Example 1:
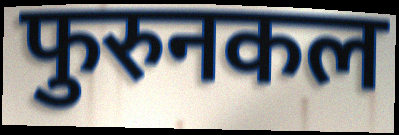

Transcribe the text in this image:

फुरुनकल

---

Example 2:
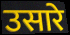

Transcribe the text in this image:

उसारे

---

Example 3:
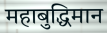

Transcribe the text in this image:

महाबुद्धिमान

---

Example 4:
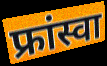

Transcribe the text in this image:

फ्रांस्वा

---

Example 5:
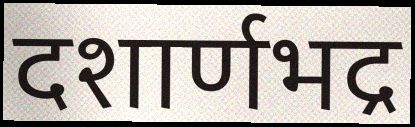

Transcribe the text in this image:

दशार्णभद्र